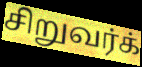
சிறுவர்க்